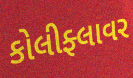
કોલીફ્લાવર